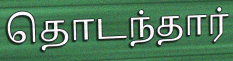
தொடந்தார்